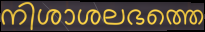
നിശാശലഭത്തെ